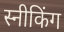
स्नीकिंग